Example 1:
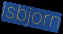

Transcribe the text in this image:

Isbjorn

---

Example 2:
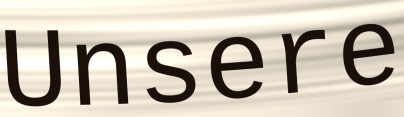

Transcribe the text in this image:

Unsere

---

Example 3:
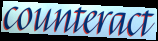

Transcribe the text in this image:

counteract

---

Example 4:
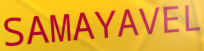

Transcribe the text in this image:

SAMAYAVEL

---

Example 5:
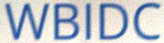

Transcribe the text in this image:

WBIDC